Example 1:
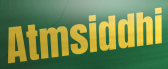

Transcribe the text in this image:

Atmsiddhi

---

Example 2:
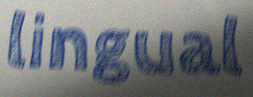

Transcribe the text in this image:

lingual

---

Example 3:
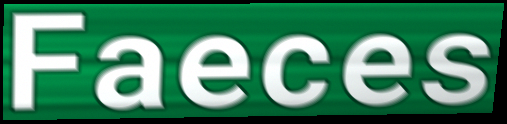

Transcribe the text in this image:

Faeces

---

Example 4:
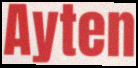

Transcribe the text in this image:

Ayten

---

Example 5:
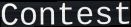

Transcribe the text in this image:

Contest